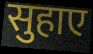
सुहाए